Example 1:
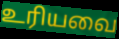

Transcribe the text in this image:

உரியவை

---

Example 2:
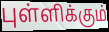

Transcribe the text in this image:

புள்ளிக்கும்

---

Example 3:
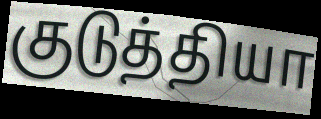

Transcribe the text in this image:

குடுத்தியா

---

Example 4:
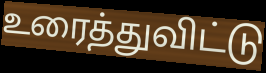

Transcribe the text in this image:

உரைத்துவிட்டு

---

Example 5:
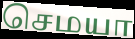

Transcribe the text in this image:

செமயா